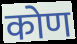
कोण